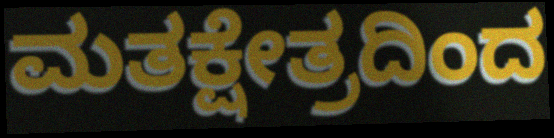
ಮತಕ್ಷೇತ್ರದಿಂದ